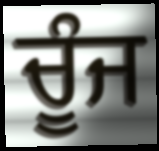
ਚੂੰਜ